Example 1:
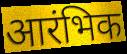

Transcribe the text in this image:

आरंभिक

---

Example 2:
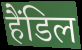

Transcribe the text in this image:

हैंडिल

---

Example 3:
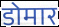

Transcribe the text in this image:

डोमार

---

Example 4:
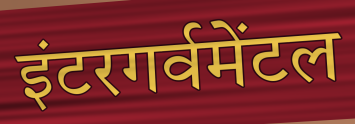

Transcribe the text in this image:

इंटरगर्वमेंटल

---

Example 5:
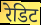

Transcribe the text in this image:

रेडिट